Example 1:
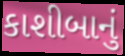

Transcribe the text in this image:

કાશીબાનું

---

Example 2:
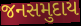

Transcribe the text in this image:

જનસમુદાય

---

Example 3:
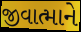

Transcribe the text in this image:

જીવાત્માને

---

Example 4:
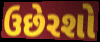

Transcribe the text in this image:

ઉછેરશો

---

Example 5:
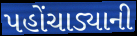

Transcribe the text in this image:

પહોંચાડ્યાની